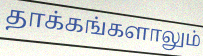
தாக்கங்களாலும்